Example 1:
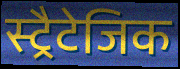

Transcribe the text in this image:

स्ट्रैटेजिक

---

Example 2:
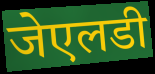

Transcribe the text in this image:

जेएलडी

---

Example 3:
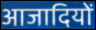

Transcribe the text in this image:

आजादियों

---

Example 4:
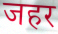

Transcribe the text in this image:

जहर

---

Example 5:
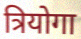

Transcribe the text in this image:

त्रियोगा